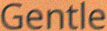
Gentle